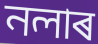
নলাৰ